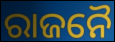
ରାଜନୈ